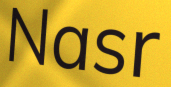
Nasr